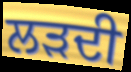
ਲੜਦੀ